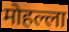
मोहल्ला